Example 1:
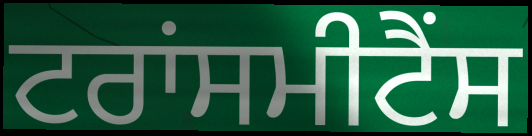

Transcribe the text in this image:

ਟਰਾਂਸਮੀਟੈਂਸ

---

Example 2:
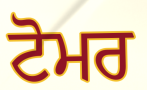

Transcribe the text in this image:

ਟੋਮਰ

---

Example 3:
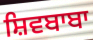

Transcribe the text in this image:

ਸ਼ਿਵਬਾਬਾ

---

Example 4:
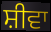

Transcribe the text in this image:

ਸ਼ੀਵਾ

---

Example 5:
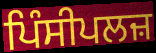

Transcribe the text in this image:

ਪਿੰਸੀਪਲਜ਼